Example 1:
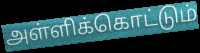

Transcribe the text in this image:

அள்ளிக்கொட்டும்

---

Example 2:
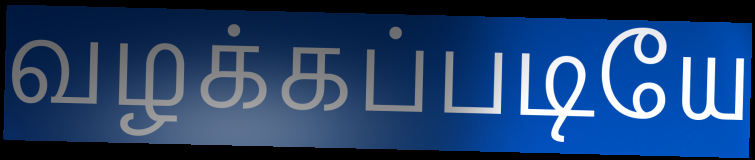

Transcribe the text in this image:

வழக்கப்படியே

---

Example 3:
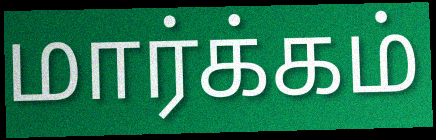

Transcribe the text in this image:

மார்க்கம்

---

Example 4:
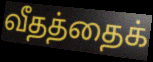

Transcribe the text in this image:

வீதத்தைக்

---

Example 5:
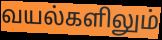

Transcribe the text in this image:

வயல்களிலும்